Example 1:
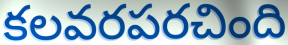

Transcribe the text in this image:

కలవరపరచింది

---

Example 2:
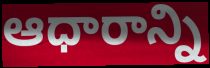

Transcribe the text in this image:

ఆధారాన్ని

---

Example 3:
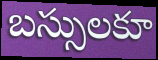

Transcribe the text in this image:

బస్సులకూ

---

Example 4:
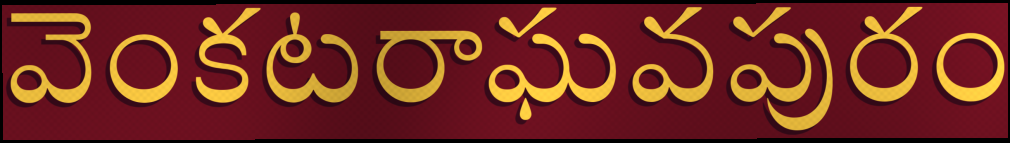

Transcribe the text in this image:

వెంకటరాఘవపురం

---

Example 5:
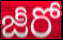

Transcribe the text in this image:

జీరో